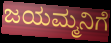
ಜಯಮ್ಮನಿಗೆ